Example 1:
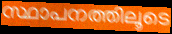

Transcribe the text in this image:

സ്ഥാപനത്തിലൂടെ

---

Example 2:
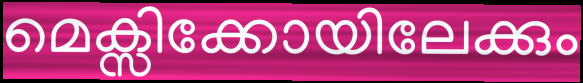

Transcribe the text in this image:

മെക്സിക്കോയിലേക്കും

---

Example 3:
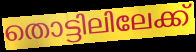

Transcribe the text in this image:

തൊട്ടിലിലേക്ക്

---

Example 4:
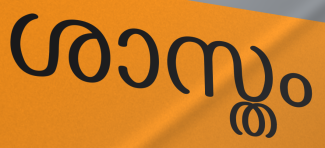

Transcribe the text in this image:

ശാസ്തം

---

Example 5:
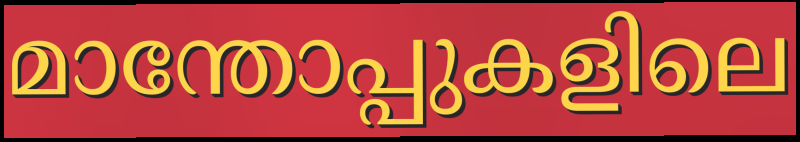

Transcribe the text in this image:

മാന്തോപ്പുകളിലെ